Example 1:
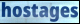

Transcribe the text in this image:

hostages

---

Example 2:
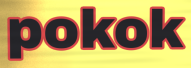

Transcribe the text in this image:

pokok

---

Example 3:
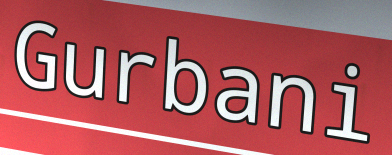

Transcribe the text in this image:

Gurbani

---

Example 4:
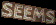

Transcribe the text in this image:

SEEMS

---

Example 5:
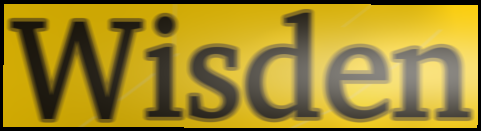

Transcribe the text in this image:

Wisden